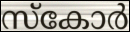
സ്കോർ